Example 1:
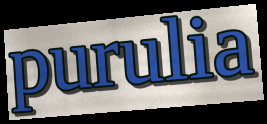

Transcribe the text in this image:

purulia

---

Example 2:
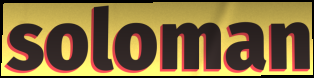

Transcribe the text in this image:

soloman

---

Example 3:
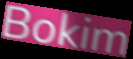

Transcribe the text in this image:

Bokim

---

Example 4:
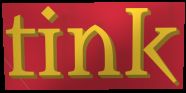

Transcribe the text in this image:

tink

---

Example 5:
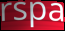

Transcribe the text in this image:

rspa